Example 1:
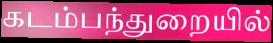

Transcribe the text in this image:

கடம்பந்துறையில்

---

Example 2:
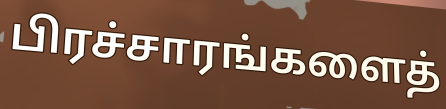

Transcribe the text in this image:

பிரச்சாரங்களைத்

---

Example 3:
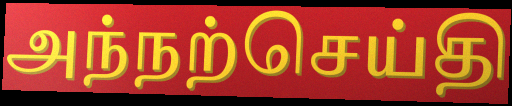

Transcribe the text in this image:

அந்நற்செய்தி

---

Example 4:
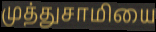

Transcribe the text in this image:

முத்துசாமியை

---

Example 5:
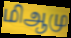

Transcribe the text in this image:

மிஆமு